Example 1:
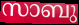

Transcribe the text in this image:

സാബു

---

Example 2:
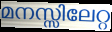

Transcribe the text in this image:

മനസ്സിലേറ്റ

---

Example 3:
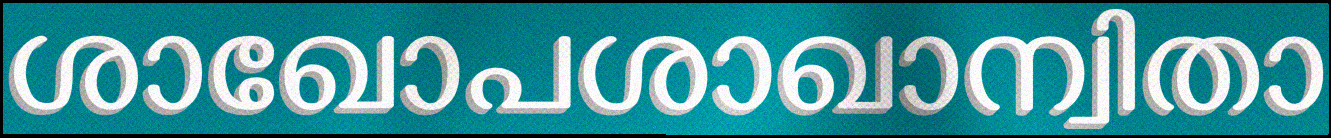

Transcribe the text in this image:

ശാഖോപശാഖാന്വിതാ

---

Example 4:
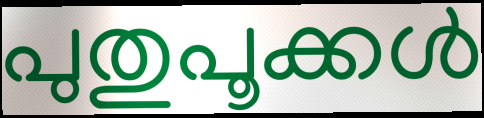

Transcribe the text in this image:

പുതുപൂക്കൾ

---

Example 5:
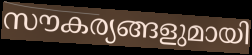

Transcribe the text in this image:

സൗകര്യങ്ങളുമായി